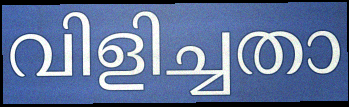
വിളിച്ചതാ